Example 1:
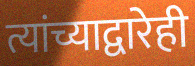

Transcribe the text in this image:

त्यांच्याद्वारेही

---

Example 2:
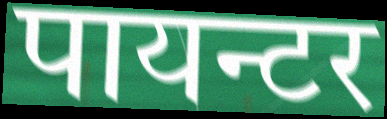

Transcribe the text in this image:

पायन्टर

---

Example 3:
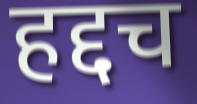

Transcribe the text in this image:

हद्दच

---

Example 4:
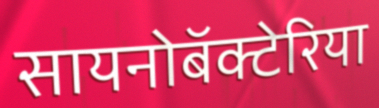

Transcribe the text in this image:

सायनोबॅक्टेरिया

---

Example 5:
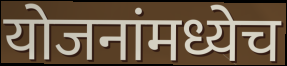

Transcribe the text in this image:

योजनांमध्येच